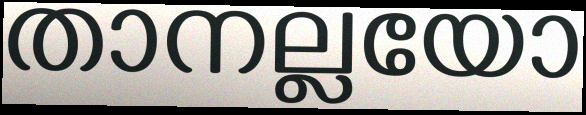
താനല്ലയോ